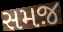
સમજ઼